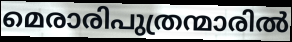
മെരാരിപുത്രന്മാരിൽ